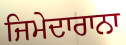
ਜਿਮੇਦਾਰਾਨਾ